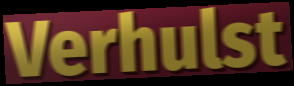
Verhulst